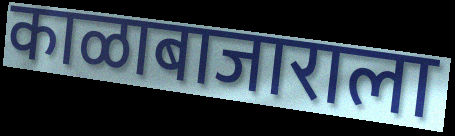
काळाबाजाराला